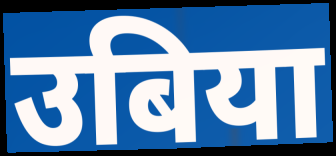
उबिया